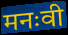
मनःवी